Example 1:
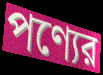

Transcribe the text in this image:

পণ্যের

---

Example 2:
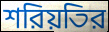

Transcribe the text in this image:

শরিয়তির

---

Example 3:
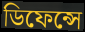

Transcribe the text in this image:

ডিফেন্সে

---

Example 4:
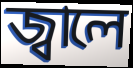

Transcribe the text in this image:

জ্বালে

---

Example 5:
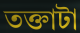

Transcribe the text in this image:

তক্তাটা